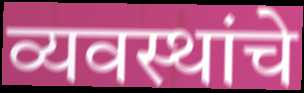
व्यवस्थांचे